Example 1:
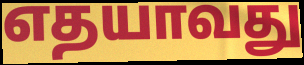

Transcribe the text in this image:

எதயாவது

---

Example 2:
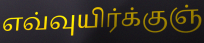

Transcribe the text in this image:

எவ்வுயிர்க்குஞ்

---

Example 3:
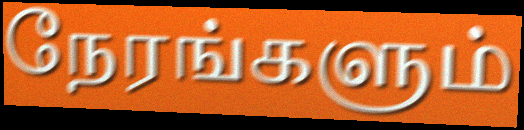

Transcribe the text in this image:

நேரங்களும்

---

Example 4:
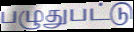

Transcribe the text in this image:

பழுதுபட்டு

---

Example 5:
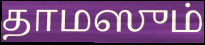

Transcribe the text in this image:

தாமஸும்